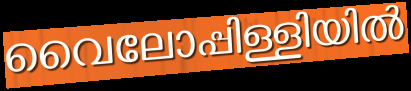
വൈലോപ്പിള്ളിയിൽ